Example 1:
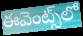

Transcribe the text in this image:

ఈవెంట్స్‌లో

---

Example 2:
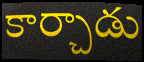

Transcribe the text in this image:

కార్చాడు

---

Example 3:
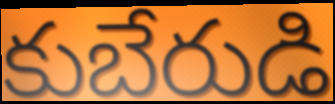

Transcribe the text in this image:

కుబేరుడి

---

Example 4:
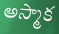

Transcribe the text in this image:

అస్మాక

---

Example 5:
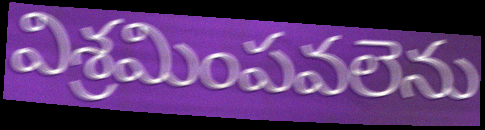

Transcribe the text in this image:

విశ్రమింపవలెను